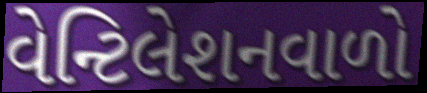
વેન્ટિલેશનવાળો